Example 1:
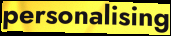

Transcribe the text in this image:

personalising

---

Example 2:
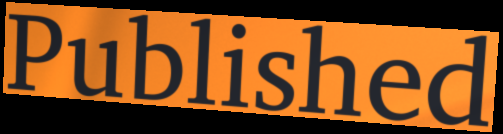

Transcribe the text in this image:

Published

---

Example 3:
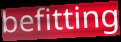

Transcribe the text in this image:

befitting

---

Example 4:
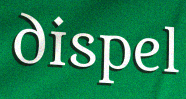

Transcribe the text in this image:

dispel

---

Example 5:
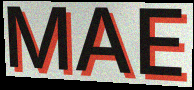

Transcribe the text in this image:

MAE